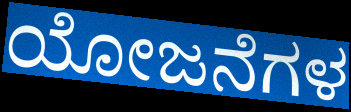
ಯೋಜನೆಗಳ